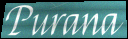
Purana